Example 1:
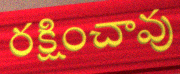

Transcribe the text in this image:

రక్షించావు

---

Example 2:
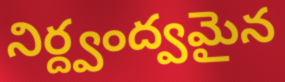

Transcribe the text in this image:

నిర్ద్వంద్వమైన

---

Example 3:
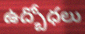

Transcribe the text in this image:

ఉద్బోధలు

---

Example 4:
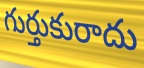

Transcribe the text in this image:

గుర్తుకురాదు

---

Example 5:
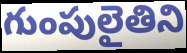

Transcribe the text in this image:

గుంపులైతిని